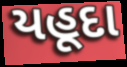
યહૂદા